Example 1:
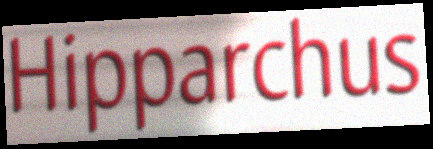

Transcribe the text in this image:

Hipparchus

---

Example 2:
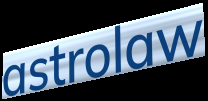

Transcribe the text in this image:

astrolaw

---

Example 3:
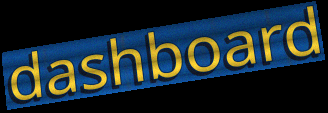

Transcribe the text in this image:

dashboard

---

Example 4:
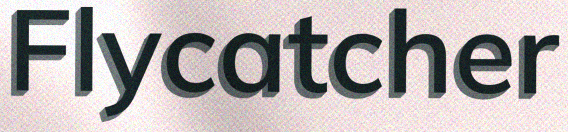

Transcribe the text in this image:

Flycatcher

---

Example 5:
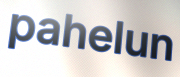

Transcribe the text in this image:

pahelun